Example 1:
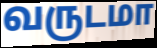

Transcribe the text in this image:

வருடமா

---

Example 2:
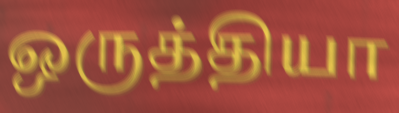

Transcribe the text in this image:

ஒருத்தியா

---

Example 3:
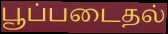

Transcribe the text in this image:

பூப்படைதல்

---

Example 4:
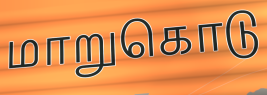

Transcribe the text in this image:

மாறுகொடு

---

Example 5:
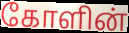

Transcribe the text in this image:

கோளின்